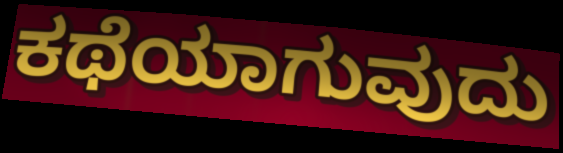
ಕಥೆಯಾಗುವುದು